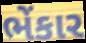
ભેંકાર